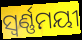
ସ୍ୱର୍ଣ୍ଣମୟୀ